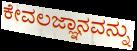
ಕೇವಲಜ್ಞಾನವನ್ನು